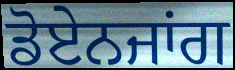
ਡੋਏਨਜਾਂਗ